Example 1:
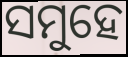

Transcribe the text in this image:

ସମୁହେ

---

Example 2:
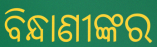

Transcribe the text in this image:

ବିନ୍ଧାଣୀଙ୍କର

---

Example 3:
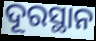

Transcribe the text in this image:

ଦୂରସ୍ଥାନ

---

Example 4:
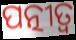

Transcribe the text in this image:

ପତ୍ନୀତ୍ୱ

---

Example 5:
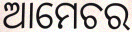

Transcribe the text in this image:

ଆମେଚର